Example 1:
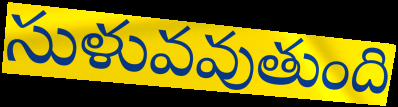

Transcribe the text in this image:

సుళువవుతుంది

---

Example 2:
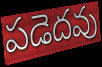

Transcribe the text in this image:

పడెదవు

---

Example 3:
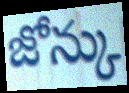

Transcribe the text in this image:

జోన్కు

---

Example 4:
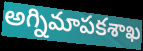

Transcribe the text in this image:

అగ్నిమాపకశాఖ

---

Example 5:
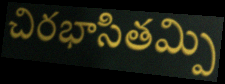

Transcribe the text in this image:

చిరభాసితమ్పి